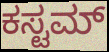
ಕಸ್ಟಮ್